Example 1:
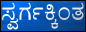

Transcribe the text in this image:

ಸ್ವರ್ಗಕ್ಕಿಂತ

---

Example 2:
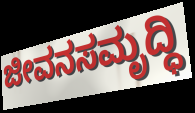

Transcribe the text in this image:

ಜೀವನಸಮೃದ್ಧಿ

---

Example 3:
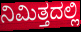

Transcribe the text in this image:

ನಿಮಿತ್ತದಲ್ಲಿ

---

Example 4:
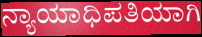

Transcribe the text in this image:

ನ್ಯಾಯಾಧಿಪತಿಯಾಗಿ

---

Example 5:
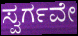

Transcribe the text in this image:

ಸ್ವರ್ಗವೇ